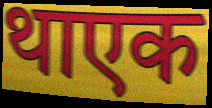
थाएक